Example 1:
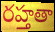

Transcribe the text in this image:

రహ్తతా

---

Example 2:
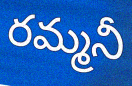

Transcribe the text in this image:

రమ్మనీ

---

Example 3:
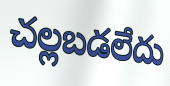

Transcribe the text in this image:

చల్లబడలేదు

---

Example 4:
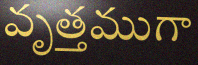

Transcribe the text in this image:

వృత్తముగా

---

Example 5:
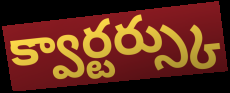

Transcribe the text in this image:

క్వార్టర్స్కు